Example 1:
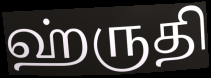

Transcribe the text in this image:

ஹ்ருதி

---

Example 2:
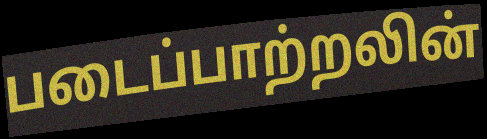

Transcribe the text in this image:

படைப்பாற்றலின்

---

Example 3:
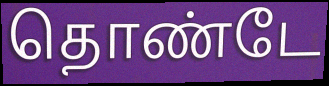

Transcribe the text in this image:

தொண்டே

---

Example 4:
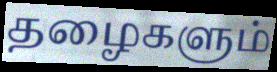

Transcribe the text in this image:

தழைகளும்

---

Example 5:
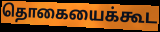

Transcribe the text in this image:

தொகையைக்கூட